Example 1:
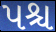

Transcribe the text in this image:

પશ્ચ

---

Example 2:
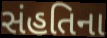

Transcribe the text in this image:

સંહતિના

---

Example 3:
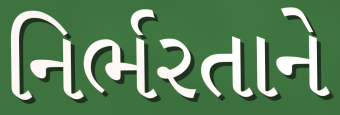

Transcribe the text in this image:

નિર્ભરતાને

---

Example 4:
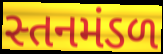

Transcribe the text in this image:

સ્તનમંડળ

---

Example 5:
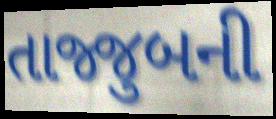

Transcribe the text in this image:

તાજ્જુબની